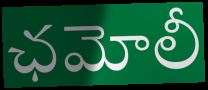
ఛమోలీ